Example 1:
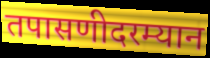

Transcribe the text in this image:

तपासणीदरम्यान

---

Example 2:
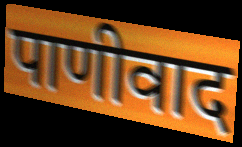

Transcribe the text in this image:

पाणीवाद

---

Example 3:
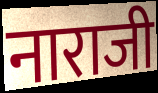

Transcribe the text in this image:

नाराजी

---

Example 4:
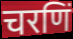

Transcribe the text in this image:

चरणिं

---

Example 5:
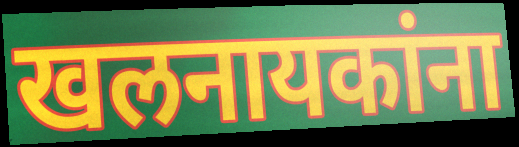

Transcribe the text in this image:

खलनायकांना